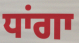
ਧਾਂਗਾ